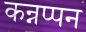
कन्नप्पन